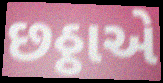
છઠ્ઠાએ